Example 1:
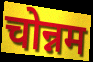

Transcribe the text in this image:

चोन्नम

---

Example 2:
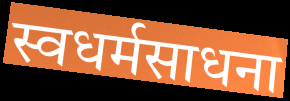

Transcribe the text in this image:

स्वधर्मसाधना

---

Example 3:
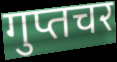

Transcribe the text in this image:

गुप्तचर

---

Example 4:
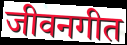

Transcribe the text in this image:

जीवनगीत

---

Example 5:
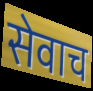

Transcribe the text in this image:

सेवाच